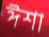
ঈশা